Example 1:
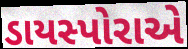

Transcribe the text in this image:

ડાયસ્પોરાએ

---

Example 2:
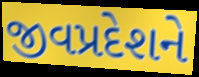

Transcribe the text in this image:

જીવપ્રદેશને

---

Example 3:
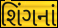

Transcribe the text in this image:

શિંગનાં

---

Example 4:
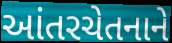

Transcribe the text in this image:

આંતરચેતનાને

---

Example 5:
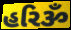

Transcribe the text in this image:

હરિૐ